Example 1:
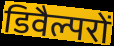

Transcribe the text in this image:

डिवैल्परों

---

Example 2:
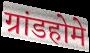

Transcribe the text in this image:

ग्रांडहोमे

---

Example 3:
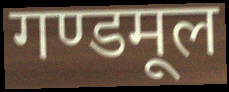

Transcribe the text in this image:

गण्डमूल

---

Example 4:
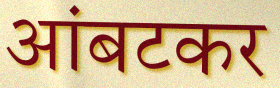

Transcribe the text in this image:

आंबटकर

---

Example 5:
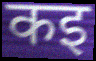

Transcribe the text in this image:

कइ